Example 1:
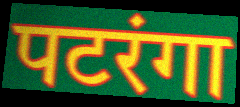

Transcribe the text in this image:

पटरंगा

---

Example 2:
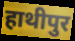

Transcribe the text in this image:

हाथीपुर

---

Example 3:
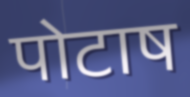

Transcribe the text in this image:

पोटाष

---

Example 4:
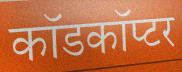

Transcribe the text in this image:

कॉडकॉप्टर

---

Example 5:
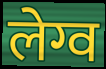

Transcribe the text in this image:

लेग्व